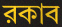
রকাব